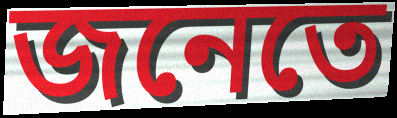
জনেতে